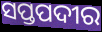
ସପ୍ତପଦୀର